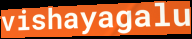
vishayagalu